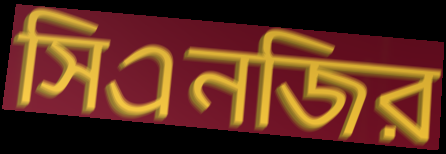
সিএনজির